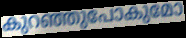
കുറഞ്ഞുപോകുമോ